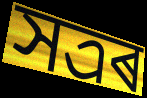
সত্ৰৰ